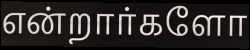
என்றார்களோ